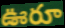
ఊరూ